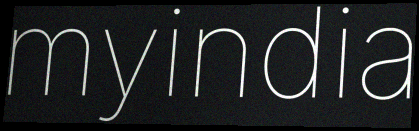
myindia